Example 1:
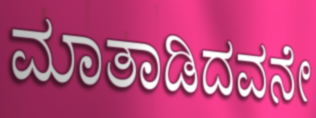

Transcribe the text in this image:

ಮಾತಾಡಿದವನೇ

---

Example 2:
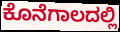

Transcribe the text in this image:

ಕೊನೆಗಾಲದಲ್ಲಿ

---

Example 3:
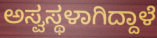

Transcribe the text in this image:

ಅಸ್ವಸ್ಥಳಾಗಿದ್ದಾಳೆ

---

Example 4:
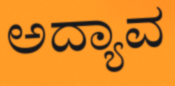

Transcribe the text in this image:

ಅದ್ಯಾವ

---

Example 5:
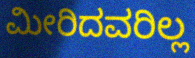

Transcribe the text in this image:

ಮೀರಿದವರಿಲ್ಲ